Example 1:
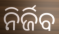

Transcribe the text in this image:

ନିର୍ଜିବ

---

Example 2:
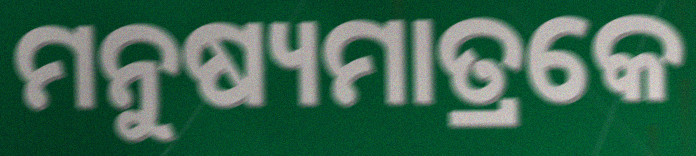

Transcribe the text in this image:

ମନୁଷ୍ୟମାତ୍ରକେ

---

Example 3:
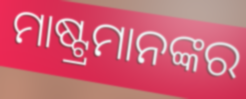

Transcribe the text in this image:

ମାଷ୍ଟ୍ରମାନଙ୍କର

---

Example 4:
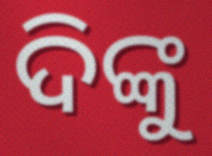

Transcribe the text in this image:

ଦିଙ୍କୁ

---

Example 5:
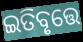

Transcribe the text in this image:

ଇତିବୃତ୍ତେ